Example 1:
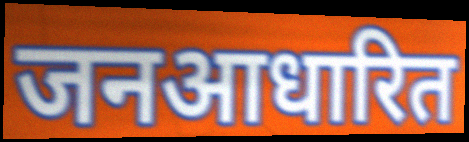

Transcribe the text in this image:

जनआधारित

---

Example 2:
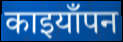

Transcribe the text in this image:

काइयाँपन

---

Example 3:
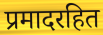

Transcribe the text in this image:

प्रमादरहित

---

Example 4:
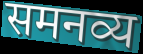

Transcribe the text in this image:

समनव्य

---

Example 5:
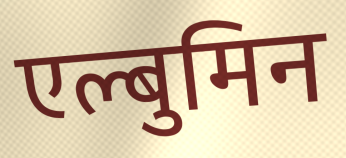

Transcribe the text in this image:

एल्बुमिन